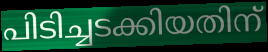
പിടിച്ചടക്കിയതിന്